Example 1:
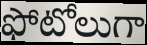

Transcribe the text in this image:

ఫోటోలుగా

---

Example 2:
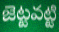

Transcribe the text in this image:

జెట్టవట్టి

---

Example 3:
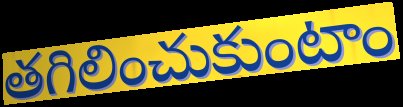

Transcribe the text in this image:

తగిలించుకుంటాం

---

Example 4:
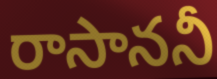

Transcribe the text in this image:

రాసాననీ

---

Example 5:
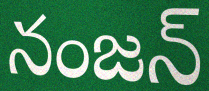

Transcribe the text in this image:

నంజన్